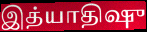
இத்யாதிஷு